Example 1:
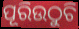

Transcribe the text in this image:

ପୂରିଉଠୁଚି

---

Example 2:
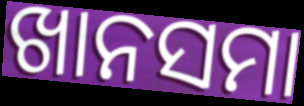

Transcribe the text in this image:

ଖାନସମା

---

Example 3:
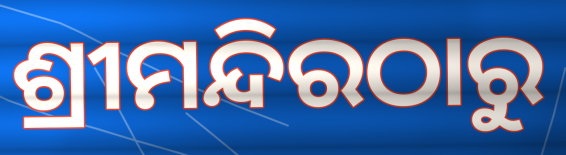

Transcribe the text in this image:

ଶ୍ରୀମନ୍ଦିରଠାରୁ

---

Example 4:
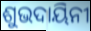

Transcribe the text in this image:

ଶୁଭଦାୟିନୀ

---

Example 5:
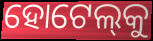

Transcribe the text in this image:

ହୋଟେଲ୍‌କୁ